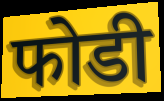
फोडी